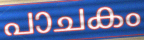
പാചകം